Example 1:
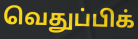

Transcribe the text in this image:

வெதுப்பிக்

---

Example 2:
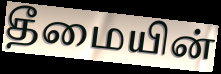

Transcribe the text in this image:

தீமையின்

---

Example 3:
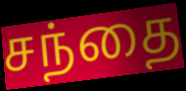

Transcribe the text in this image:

சந்தை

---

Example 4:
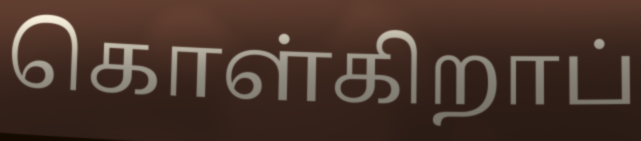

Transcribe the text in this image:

கொள்கிறாப்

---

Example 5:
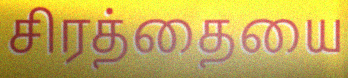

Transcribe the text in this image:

சிரத்தையை